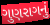
ગુણરાગનું